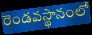
రెండవస్థానంలో